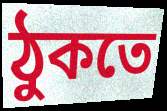
ঠুকতে